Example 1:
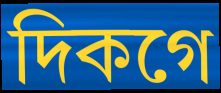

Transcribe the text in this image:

দিকগে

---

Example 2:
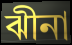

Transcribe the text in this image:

ঝীনা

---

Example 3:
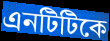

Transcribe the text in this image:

এনটিটিকে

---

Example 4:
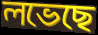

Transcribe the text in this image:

লভেছে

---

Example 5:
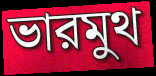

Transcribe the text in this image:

ভারমুথ